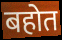
बहोत